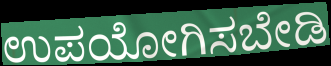
ಉಪಯೋಗಿಸಬೇಡಿ